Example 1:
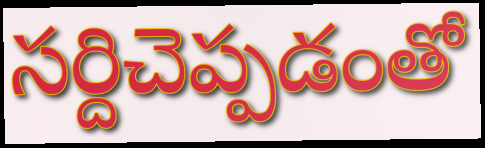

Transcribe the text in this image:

సర్దిచెప్పడంతో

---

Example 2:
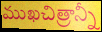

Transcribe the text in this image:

ముఖచిత్రాన్నీ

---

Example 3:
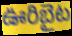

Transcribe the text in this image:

ఊరిబైట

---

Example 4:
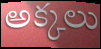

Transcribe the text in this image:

అక్కలు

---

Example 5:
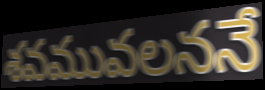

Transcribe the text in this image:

శవమువలననే